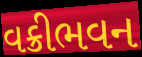
વક્રીભવન